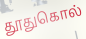
தூதுகொல்